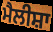
ਮੈਲੀਸ਼ਾ